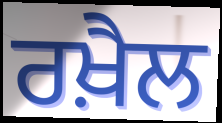
ਰਖ਼ੈਲ